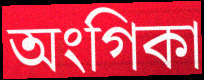
অংগিকা